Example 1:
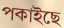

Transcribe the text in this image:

পকাইছে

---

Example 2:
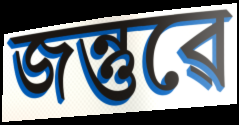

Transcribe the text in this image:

জন্তুৱে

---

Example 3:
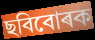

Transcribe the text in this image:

ছবিবোৰক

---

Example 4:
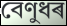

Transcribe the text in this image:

বেণুধৰ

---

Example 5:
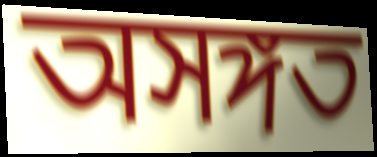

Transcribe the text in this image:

অসঙ্গত